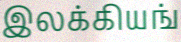
இலக்கியங்